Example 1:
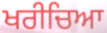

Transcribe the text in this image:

ਖਰੀਚਿਆ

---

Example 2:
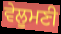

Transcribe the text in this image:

ਵੇਲੂਮਣੀ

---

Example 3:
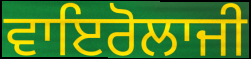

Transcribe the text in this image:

ਵਾਇਰੋਲਾਜੀ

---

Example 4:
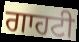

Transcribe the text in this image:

ਗਾਹਟੀ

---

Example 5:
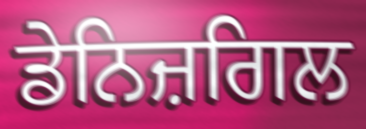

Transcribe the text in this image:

ਡੇਨਿਜ਼ਗਿਲ